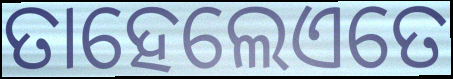
ତାହେଲେଏତେ